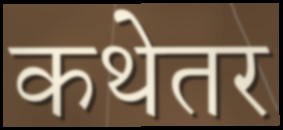
कथेतर